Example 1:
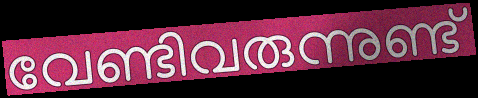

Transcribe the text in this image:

വേണ്ടിവരുന്നുണ്ട്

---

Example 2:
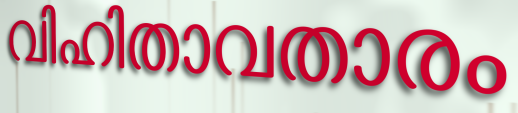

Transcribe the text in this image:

വിഹിതാവതാരം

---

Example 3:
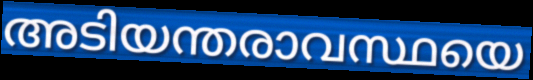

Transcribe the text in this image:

അടിയന്തരാവസ്ഥയെ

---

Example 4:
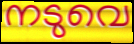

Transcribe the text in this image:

നടുവെ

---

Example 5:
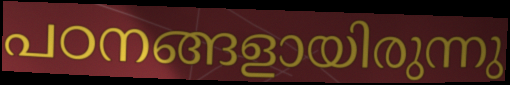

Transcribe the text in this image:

പഠനങ്ങളായിരുന്നു